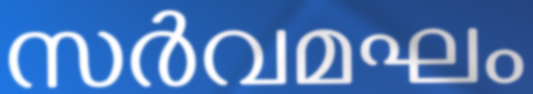
സർവമഘം